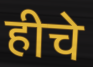
हीचे